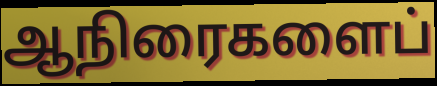
ஆநிரைகளைப்